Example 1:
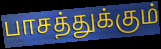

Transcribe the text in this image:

பாசத்துக்கும்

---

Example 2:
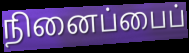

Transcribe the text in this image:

நினைப்பைப்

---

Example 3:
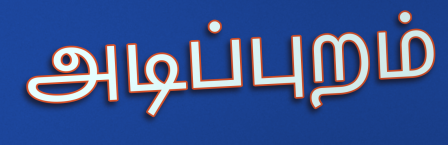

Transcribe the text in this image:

அடிப்புறம்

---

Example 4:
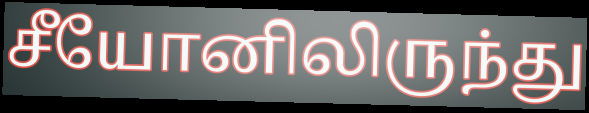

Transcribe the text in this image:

சீயோனிலிருந்து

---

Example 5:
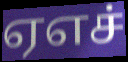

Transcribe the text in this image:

ஏஎச்